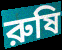
রুষি